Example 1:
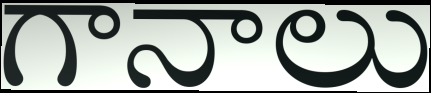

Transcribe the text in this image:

గానాలు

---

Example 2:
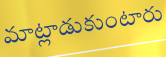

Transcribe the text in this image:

మాట్లాడుకుంటారు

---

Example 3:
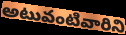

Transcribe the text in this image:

అటువంటివారిని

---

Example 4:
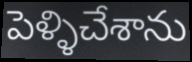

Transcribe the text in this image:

పెళ్ళిచేశాను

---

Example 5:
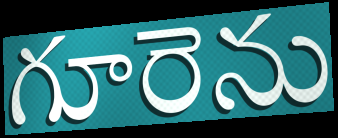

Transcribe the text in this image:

గూరెను